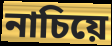
নাচিয়ে